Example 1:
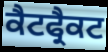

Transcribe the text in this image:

ਕੈਟਫ੍ਰੈਕਟ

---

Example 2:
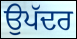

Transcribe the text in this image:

ਉਪੱਦਰ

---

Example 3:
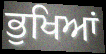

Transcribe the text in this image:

ਭੁਖਿਆਂ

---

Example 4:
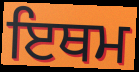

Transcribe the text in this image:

ਇਥਮ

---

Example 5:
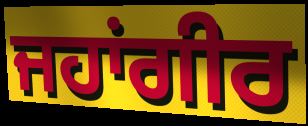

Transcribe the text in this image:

ਜਹਾਂਗੀਰ